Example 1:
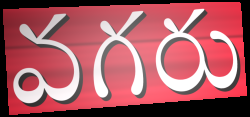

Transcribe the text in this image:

వగరు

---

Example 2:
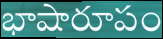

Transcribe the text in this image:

భాషారూపం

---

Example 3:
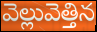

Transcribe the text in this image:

వెల్లువెత్తిన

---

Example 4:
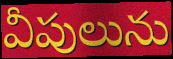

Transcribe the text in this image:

వీపులును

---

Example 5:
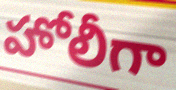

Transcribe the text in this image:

హోలీగా